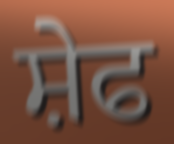
ਸ਼ੇਫ